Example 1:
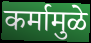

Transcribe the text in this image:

कर्मामुळे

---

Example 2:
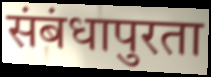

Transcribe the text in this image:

संबंधापुरता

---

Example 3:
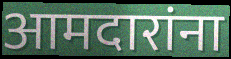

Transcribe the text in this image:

आमदारांना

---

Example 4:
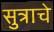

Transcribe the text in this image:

सुत्राचे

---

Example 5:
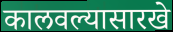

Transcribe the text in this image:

कालवल्यासारखे